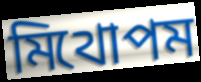
মিথোপম